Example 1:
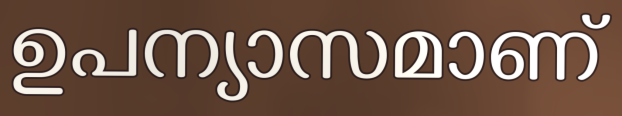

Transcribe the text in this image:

ഉപന്യാസമാണ്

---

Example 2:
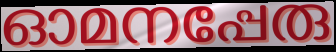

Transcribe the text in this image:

ഓമനപ്പേരു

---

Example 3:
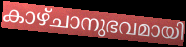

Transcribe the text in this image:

കാഴ്ചാനുഭവമായി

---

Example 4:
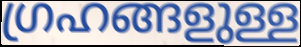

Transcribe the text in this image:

ഗ്രഹങ്ങളുള്ള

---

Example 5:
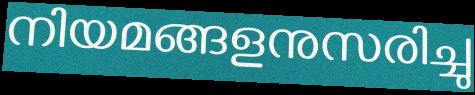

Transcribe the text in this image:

നിയമങ്ങളനുസരിച്ചു